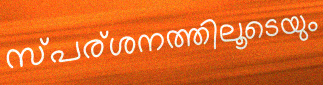
സ്പര്ശനത്തിലൂടെയും